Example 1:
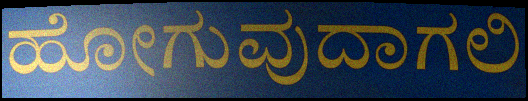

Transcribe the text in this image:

ಹೋಗುವುದಾಗಲಿ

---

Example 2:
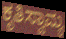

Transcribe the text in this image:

ಕೃತಿಸ್ವಾಮ್ಯ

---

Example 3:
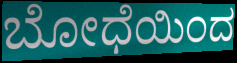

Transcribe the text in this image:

ಬೋಧೆಯಿಂದ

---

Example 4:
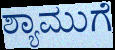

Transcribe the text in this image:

ಶ್ಯಾಮುಗೆ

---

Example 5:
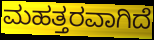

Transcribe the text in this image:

ಮಹತ್ತರವಾಗಿದೆ